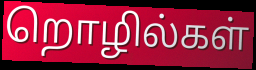
றொழில்கள்